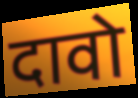
दावो